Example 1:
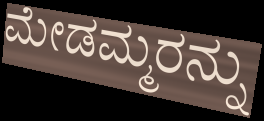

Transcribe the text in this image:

ಮೇಡಮ್ಮರನ್ನು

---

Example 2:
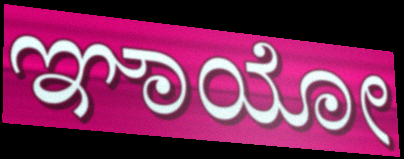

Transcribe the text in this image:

ಞಾಯೋ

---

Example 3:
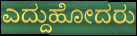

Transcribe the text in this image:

ಎದ್ದುಹೋದರು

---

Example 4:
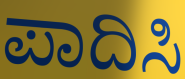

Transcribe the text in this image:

ಪಾದಿಸಿ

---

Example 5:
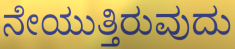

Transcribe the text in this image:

ನೇಯುತ್ತಿರುವುದು